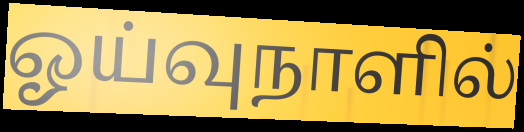
ஓய்வுநாளில்